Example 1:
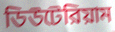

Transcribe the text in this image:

ডিউটেরিয়াম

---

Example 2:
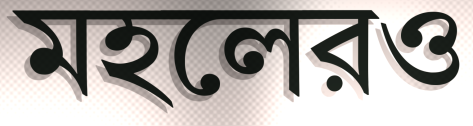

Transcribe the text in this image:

মহলেরও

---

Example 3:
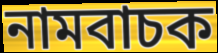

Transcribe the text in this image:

নামবাচক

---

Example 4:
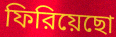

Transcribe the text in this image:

ফিরিয়েছো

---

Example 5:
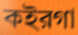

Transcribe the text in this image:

কইরগা